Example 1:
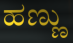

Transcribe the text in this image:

ಹಣ್ಣು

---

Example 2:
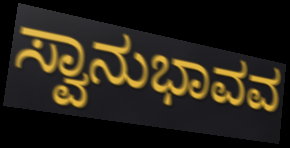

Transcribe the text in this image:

ಸ್ವಾನುಭಾವವ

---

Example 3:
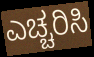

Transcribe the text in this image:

ಎಚ್ಚರಿಸಿ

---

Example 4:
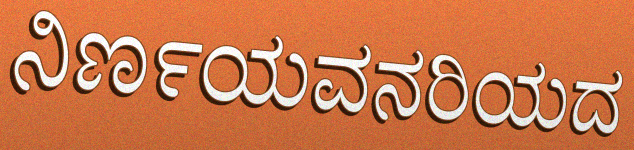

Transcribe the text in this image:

ನಿರ್ಣಯವನರಿಯದ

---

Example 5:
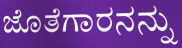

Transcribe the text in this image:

ಜೊತೆಗಾರನನ್ನು